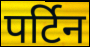
पर्टिन